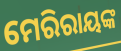
ମେରିରାୟଙ୍କ